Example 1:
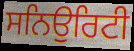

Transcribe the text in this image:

ਸਨਿਉਰਿਟੀ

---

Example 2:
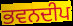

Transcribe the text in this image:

ਭਵਨਦੀਪ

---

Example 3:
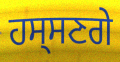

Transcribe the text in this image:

ਹਸ੍ਸਣਗੇ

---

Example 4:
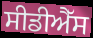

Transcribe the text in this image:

ਸੀਡੀਐੱਸ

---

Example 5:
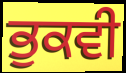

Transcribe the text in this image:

ਭੁਕਵੀ